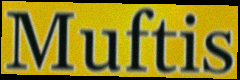
Muftis